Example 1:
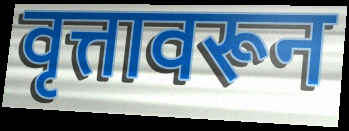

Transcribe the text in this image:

वृत्तावरून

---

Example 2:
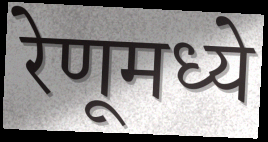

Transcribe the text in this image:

रेणूमध्ये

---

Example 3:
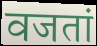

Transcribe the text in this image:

वजतां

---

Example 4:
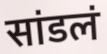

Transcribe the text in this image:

सांडलं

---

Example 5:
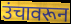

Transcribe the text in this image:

उंचावरून